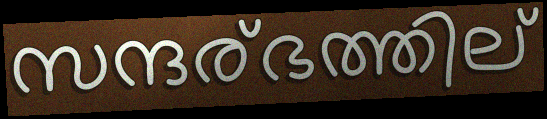
സന്ദര്ഭത്തില്